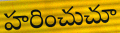
హరించుచూ